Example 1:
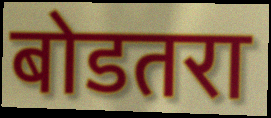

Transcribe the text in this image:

बोडतरा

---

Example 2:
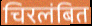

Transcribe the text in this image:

चिरलंबित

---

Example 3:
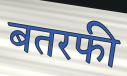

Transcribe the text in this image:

बतरफी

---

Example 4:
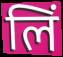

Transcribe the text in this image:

लिं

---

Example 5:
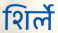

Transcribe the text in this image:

शिर्ले